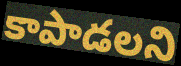
కాపాడలని